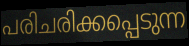
പരിചരിക്കപ്പെടുന്ന